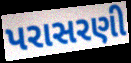
પરાસરણી